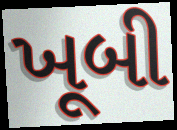
ખૂબી